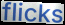
flicks